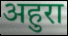
अहुरा